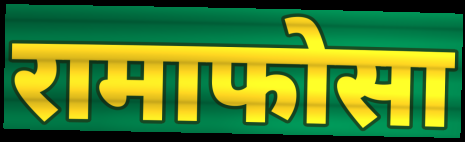
रामाफोसा